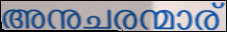
അനുചരന്മാര്